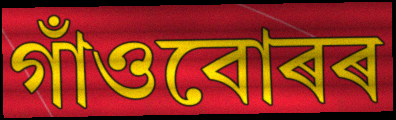
গাঁওবোৰৰ